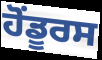
ਹੋਂਡੂਰਸ